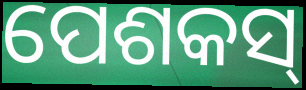
ପେଶକସ୍